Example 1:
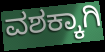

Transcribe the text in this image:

ವಶಕ್ಕಾಗಿ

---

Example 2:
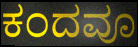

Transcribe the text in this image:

ಕಂದವೂ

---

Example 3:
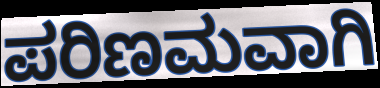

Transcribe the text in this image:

ಪರಿಣಮವಾಗಿ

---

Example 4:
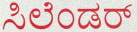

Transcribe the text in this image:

ಸಿಲೆಂಡರ್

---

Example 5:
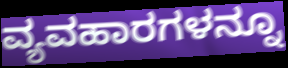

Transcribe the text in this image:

ವ್ಯವಹಾರಗಳನ್ನೂ